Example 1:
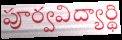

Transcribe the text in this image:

పూర్వవిద్యార్థి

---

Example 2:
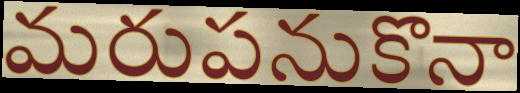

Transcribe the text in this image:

మరుపనుకొనా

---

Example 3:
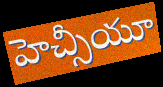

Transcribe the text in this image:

హెచ్సీయూ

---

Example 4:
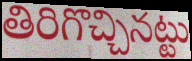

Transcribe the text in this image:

తిరిగొచ్చినట్టు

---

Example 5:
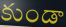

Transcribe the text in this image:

కుండా